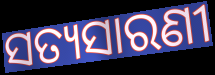
ସତ୍ୟସାରଣୀ